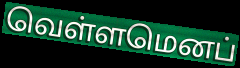
வெள்ளமெனப்